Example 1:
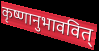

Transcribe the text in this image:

कृष्णानुभाववित्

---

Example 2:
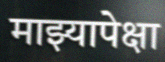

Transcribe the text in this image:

माझ्यापेक्षा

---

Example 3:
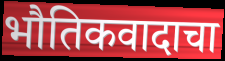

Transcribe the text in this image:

भौतिकवादाचा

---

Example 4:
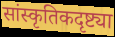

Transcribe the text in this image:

सांस्कृतिकदृष्ट्या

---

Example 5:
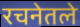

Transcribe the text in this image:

रचनेतले